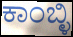
ಕಾಂಬ್ಳಿ